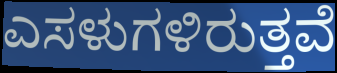
ಎಸಳುಗಳಿರುತ್ತವೆ